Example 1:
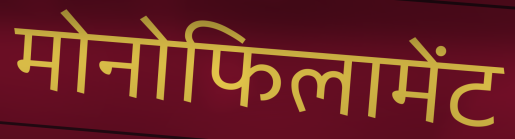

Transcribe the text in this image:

मोनोफिलामेंट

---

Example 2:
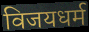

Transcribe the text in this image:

विजयधर्म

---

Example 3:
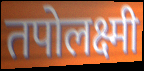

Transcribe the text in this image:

तपोलक्ष्मी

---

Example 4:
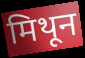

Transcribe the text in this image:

मिथून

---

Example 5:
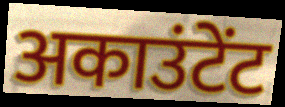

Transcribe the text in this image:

अकाउंटेंट